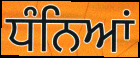
ਧੰਨਿਆਂ